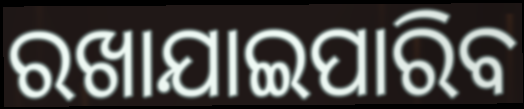
ରଖାଯାଇପାରିବ